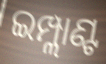
ଇମ୍ପ୍ଲାଣ୍ଟ